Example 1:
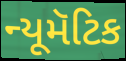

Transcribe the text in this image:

ન્યૂમૅટિક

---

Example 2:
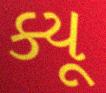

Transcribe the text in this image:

ક્યૂ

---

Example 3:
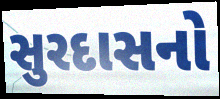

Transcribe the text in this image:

સુરદાસનો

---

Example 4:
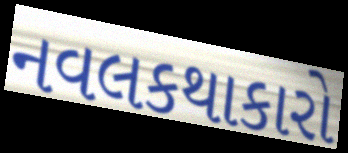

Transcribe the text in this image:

નવલકથાકારો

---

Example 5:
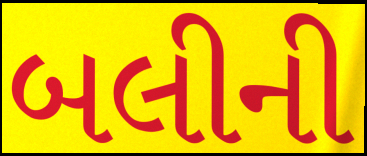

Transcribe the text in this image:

બલીની